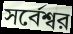
সর্বেশ্বর